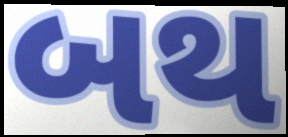
બથ